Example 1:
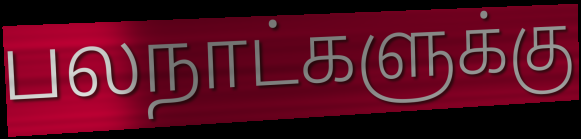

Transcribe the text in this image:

பலநாட்களுக்கு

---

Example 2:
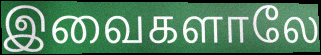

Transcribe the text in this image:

இவைகளாலே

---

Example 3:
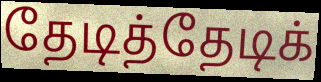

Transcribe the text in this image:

தேடித்தேடிக்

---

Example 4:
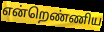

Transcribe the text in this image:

என்றெண்ணிய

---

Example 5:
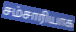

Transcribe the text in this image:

சம்சாரியாக